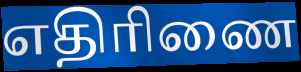
எதிரிணை